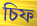
চিফ